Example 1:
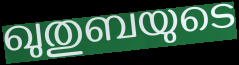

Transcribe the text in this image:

ഖുതുബയുടെ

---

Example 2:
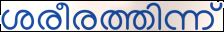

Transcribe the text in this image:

ശരീരത്തിന്ന്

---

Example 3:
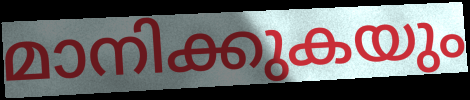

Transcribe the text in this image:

മാനിക്കുകയും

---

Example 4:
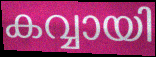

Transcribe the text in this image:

കവ്വായി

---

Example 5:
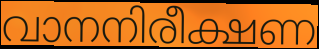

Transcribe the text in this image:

വാനനിരീക്ഷണ